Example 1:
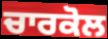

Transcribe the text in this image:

ਚਾਰਕੋਲ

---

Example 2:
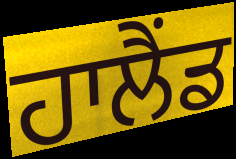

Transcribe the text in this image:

ਹਾਲੈਂਡ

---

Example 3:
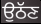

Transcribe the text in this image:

ਉਠੱਣ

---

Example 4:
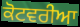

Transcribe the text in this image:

ਕੋਟਵਰੀਆ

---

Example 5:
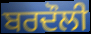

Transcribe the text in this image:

ਬਰਦੌਲੀ